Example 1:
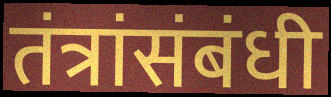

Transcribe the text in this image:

तंत्रांसंबंधी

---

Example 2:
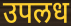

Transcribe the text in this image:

उपलध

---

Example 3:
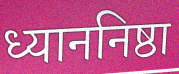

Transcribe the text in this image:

ध्याननिष्ठा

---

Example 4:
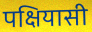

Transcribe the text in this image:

पक्षियासी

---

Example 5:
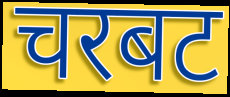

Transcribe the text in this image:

चरबट